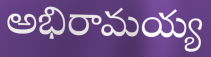
అభిరామయ్య